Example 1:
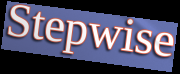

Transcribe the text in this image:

Stepwise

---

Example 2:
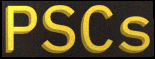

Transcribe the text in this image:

PSCs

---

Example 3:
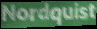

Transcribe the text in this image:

Nordquist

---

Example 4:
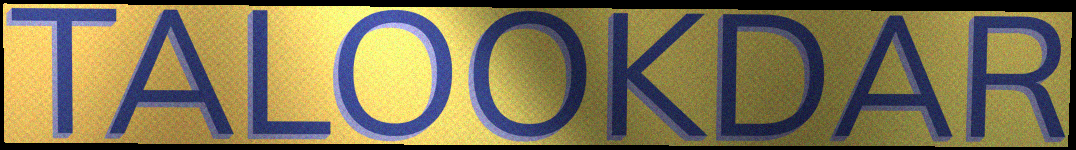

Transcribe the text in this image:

TALOOKDAR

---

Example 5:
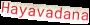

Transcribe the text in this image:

Hayavadana